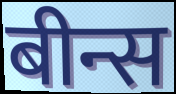
बीन्‍स